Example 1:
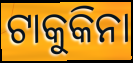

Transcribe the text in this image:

ଟାକୁକିନା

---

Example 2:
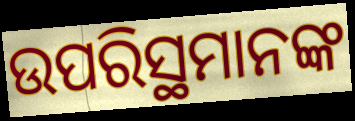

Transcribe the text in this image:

ଉପରିସ୍ଥମାନଙ୍କ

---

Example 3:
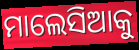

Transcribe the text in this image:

ମାଲେସିଆକୁ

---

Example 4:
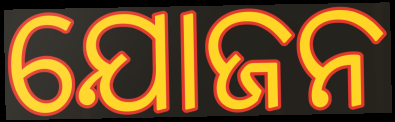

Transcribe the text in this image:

ଯୋଜନ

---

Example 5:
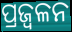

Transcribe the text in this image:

ପ୍ରଜ୍ବଳନ